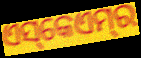
ଏସ୍‌କେଏମ୍‌ର